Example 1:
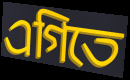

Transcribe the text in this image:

এগিতে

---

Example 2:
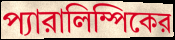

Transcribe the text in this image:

প্যারালিম্পিকের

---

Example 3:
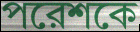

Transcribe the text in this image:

পরেশকে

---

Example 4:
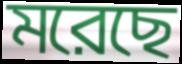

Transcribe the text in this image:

মরেছে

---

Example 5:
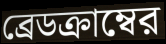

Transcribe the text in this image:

ব্রেডক্রাম্বের